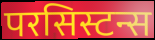
परसिस्टन्स